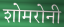
शोमरोनी